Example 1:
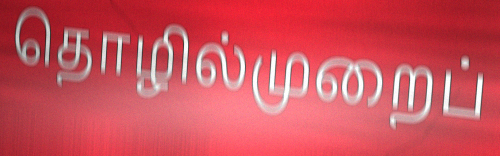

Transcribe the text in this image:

தொழில்முறைப்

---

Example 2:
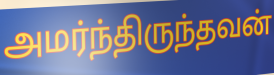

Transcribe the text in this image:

அமர்ந்திருந்தவன்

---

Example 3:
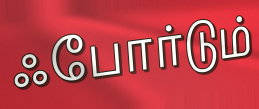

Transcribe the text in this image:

ஃபோர்டும்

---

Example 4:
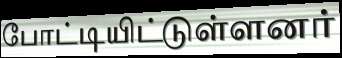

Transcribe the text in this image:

போட்டியிட்டுள்ளனர்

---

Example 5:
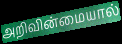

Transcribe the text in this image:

அறிவின்மையால்